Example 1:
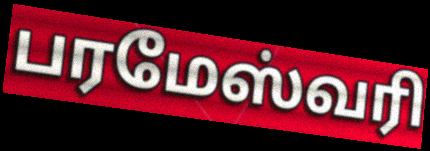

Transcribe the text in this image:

பரமேஸ்வரி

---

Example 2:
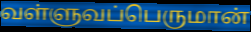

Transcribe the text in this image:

வள்ளுவப்பெருமான்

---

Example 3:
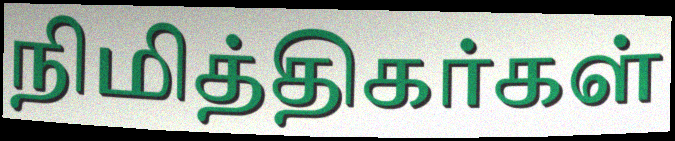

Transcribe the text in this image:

நிமித்திகர்கள்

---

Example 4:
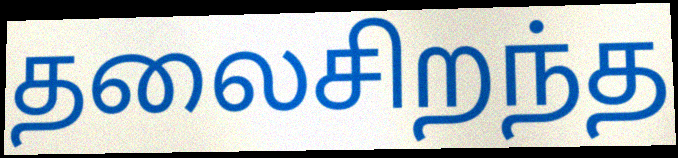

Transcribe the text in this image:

தலைசிறந்த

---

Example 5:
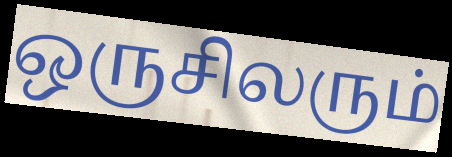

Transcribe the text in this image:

ஒருசிலரும்